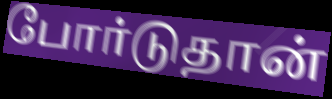
போர்டுதான்